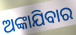
ଅଙ୍କାଯିବାର